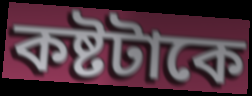
কষ্টটাকে